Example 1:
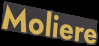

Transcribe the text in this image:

Moliere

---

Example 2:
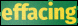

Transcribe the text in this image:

effacing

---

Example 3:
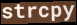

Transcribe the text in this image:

strcpy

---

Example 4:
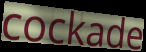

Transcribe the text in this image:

cockade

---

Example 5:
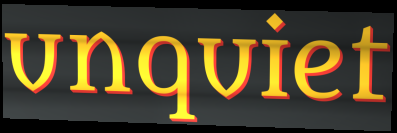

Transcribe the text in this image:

unquiet